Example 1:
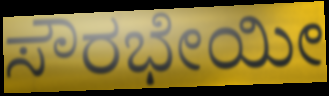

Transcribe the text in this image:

ಸೌರಭೇಯೀ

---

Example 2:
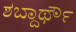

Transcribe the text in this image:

ಶಬ್ದಾರ್ಥೌ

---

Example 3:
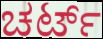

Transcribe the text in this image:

ಚರ್ಟ್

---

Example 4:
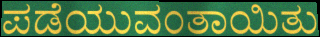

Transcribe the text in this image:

ಪಡೆಯುವಂತಾಯಿತು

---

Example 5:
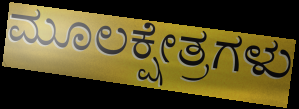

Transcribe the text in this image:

ಮೂಲಕ್ಷೇತ್ರಗಳು